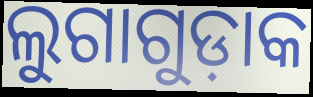
ଲୁଗାଗୁଡ଼ାକ